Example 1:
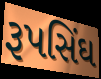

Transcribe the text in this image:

રૂપસિંઘ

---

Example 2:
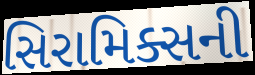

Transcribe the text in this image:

સિરામિક્સની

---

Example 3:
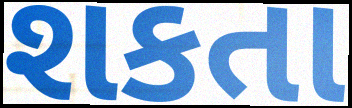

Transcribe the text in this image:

શકતા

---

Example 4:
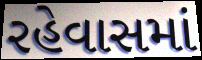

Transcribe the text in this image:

રહેવાસમાં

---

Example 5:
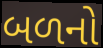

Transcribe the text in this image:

બળનો